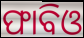
ଫାବିଓ